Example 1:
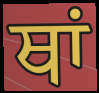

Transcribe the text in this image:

ਥਾਂ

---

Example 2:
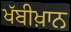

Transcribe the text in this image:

ਖੱਬੀਖ਼ਾਨ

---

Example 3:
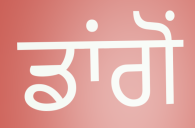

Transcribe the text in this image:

ਡਾਂਗੋਂ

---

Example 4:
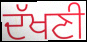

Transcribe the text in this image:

ਦੱਖਣੀ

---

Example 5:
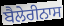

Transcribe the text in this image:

ਬੈਲੇਰੀਨਾਸ